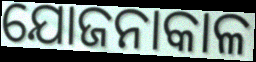
ଯୋଜନାକାଳ